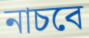
নাচবে